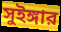
সুইঙ্গার